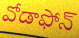
వోడాఫోన్